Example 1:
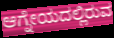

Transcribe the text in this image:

ಆಗ್ನೇಯದಲ್ಲಿರುವ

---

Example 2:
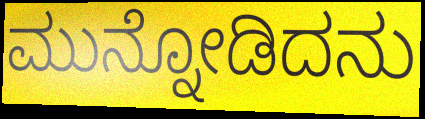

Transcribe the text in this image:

ಮುನ್ನೋಡಿದನು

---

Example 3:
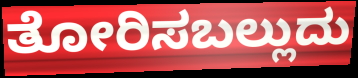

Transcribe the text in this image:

ತೋರಿಸಬಲ್ಲುದು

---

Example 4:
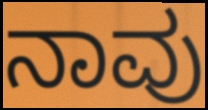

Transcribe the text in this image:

ನಾವು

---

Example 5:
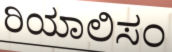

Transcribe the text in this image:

ರಿಯಾಲಿಸಂ